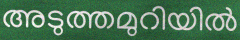
അടുത്തമുറിയിൽ